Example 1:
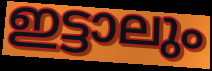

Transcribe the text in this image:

ഇട്ടാലും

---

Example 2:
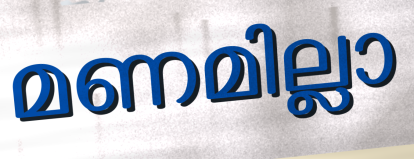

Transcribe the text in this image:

മണമില്ലാ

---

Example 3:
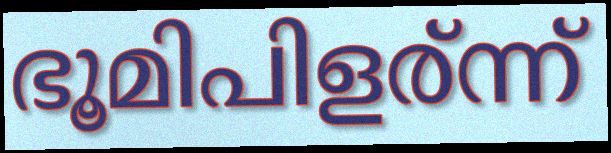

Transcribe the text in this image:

ഭൂമിപിളര്ന്ന്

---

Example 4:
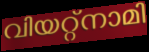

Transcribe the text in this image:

വിയറ്റ്നാമി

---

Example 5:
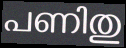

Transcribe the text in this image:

പണിതു